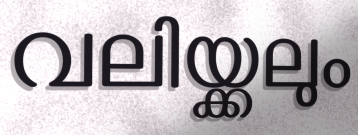
വലിയ്ക്കലും